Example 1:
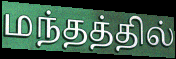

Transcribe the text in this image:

மந்தத்தில்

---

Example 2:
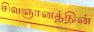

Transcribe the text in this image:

சிவஞானத்தின்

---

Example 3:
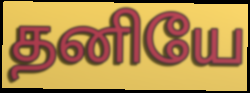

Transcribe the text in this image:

தனியே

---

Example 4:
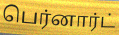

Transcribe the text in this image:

பெர்னார்ட்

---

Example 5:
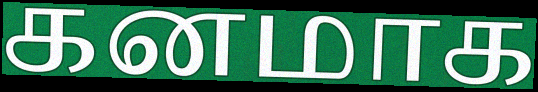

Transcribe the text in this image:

கனமாக